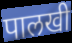
पालखी